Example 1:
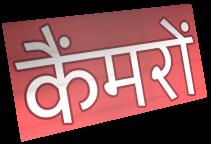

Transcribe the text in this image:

कैंमरों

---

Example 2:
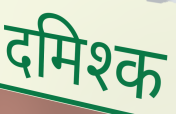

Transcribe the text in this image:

दमिश्क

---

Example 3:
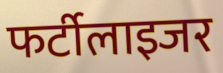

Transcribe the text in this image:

फर्टीलाइजर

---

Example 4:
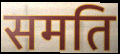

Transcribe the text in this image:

समति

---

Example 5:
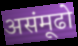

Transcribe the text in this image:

असंमूढो